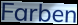
Farben